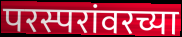
परस्परांवरच्या